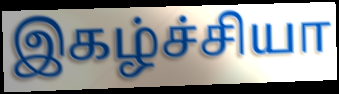
இகழ்ச்சியா